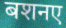
बशनए